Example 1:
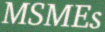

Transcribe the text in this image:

MSMEs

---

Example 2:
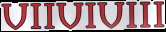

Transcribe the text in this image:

UIIUIUIII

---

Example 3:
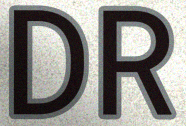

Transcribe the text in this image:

DR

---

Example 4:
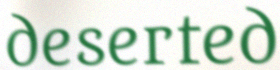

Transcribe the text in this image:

deserted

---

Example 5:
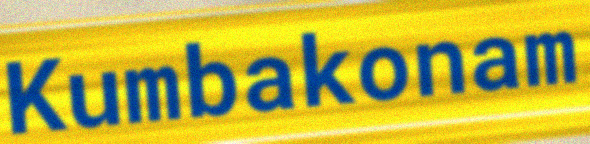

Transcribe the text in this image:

Kumbakonam